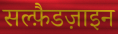
सल्फ़ैडज़ाइन